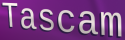
Tascam